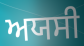
ਅਯਸੀ